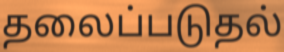
தலைப்படுதல்